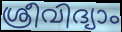
ശ്രീവിദ്യാം